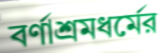
বর্ণাশ্রমধর্মের